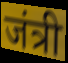
जंत्री